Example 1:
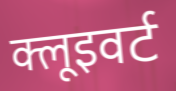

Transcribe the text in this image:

क्लूइवर्ट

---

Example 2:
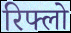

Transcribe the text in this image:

रिफ्लो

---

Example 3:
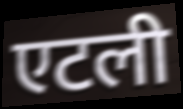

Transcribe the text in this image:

एटली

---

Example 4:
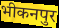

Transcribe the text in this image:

भीकनपुर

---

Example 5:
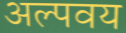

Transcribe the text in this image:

अल्पवय